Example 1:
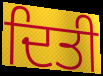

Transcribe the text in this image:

ਦਿਤੀ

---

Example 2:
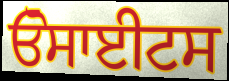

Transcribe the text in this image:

ਓੋਸਾਈਟਸ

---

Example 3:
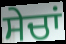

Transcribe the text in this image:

ਸੇਚਾਂ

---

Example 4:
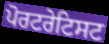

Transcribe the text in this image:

ਪੋਰਟਰੇਟਿਸਟ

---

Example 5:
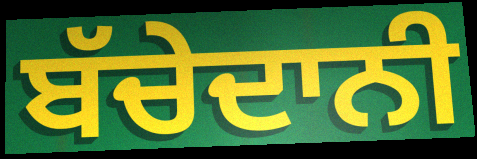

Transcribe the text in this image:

ਬੱਚੇਦਾਨੀ